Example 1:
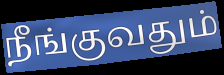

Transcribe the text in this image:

நீங்குவதும்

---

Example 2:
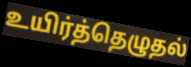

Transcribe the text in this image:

உயிர்த்தெழுதல்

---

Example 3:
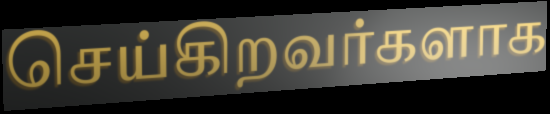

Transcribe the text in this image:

செய்கிறவர்களாக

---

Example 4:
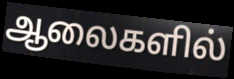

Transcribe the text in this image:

ஆலைகளில்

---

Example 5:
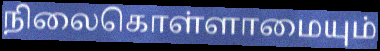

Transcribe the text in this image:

நிலைகொள்ளாமையும்